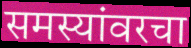
समस्यांवरचा